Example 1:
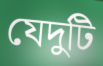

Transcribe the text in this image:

যেদুটি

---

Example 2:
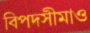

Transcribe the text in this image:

বিপদসীমাও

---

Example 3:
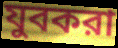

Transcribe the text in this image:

যুবকরা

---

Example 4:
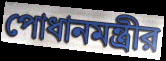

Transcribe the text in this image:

পোধানমন্ত্রীর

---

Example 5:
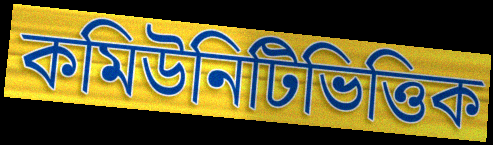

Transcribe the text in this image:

কমিউনিটিভিত্তিক